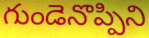
గుండెనొప్పిని